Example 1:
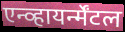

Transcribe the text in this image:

एन्व्हायर्न्मेंटल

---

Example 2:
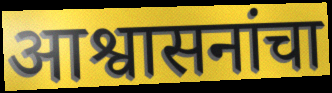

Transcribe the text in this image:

आश्वासनांचा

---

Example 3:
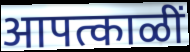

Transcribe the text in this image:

आपत्काळीं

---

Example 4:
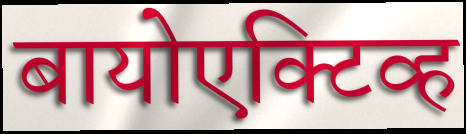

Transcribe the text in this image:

बायोएक्टिव्ह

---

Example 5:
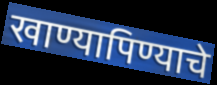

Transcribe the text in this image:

खाण्यापिण्याचे